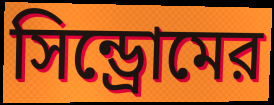
সিন্ড্রোমের